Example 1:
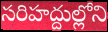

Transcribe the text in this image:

సరిహద్దుల్లోని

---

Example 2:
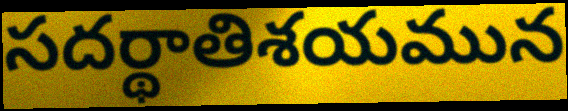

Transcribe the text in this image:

సదర్థాతిశయమున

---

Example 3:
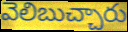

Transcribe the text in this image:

వెలిబుచ్చారు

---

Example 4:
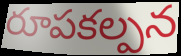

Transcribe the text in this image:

రూపకల్పన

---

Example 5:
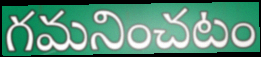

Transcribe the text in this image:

గమనించటం